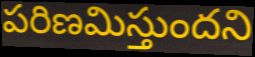
పరిణమిస్తుందని